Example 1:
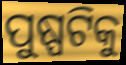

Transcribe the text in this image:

ପୁଷ୍ପଟିକୁ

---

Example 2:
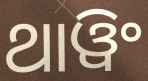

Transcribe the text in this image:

ଥାୱିଂ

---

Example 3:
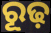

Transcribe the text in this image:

ରୂଢ଼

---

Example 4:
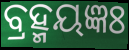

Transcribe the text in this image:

ବ୍ରହ୍ମୟଜ୍ଞଃ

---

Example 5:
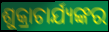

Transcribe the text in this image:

ଶୁକ୍ରାଚାର୍ଯ୍ୟଙ୍କର